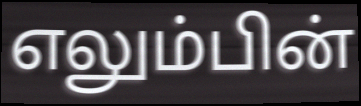
எலும்பின்